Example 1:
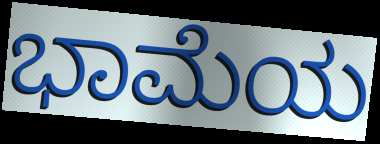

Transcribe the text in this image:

ಭಾಮೆಯ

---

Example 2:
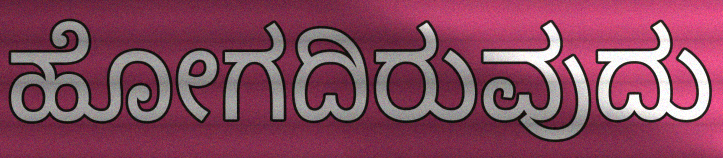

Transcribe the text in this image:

ಹೋಗದಿರುವುದು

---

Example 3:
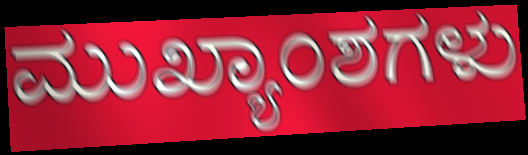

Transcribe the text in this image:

ಮುಖ್ಯಾಂಶಗಳು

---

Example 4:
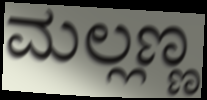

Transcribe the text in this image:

ಮಲ್ಲಣ್ಣ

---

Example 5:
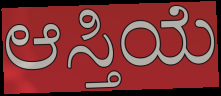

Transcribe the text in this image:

ಆಸ್ತಿಯೆ